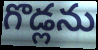
గొడ్లను